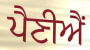
ਪੈਣੀਐਂ